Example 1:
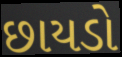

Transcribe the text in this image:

છાયડો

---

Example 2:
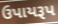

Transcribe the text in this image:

ઉપાયરૂપ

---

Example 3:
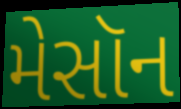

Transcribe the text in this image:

મેસૉન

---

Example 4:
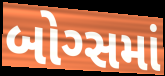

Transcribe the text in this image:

બોગ્સમાં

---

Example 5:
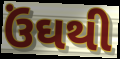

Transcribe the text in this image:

ઉંઘથી